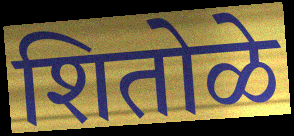
शितोळे